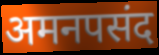
अमनपसंद